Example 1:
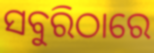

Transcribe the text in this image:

ସବୁରିଠାରେ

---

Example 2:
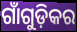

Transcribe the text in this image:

ଗାଁଗୁଡ଼ିକର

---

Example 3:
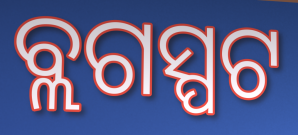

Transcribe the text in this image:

ବ୍ଲଗସ୍ପଟ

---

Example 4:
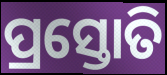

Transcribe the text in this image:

ପ୍ରସ୍ତୋତି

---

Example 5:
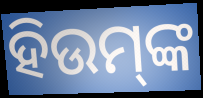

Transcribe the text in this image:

ହିଉମ୍‌ଙ୍କ